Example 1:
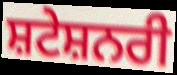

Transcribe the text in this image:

ਸ਼ਟੇਸ਼ਨਰੀ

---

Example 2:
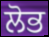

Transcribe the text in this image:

ਲੋਭ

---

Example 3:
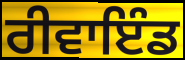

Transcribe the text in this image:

ਰੀਵਾਇੰਡ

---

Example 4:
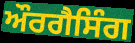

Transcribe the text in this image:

ਔਰਗੈਸਿੰਗ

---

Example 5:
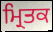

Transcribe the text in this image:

ਮ੍ਰਿਤਕ